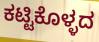
ಕಟ್ಟಿಕೊಳ್ಳದ